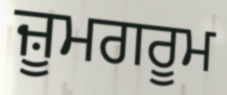
ਜ਼ੂਮਗਰੂਮ